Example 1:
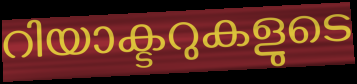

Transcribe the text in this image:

റിയാക്ടറുകളുടെ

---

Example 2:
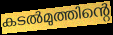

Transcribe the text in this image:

കടൽമുത്തിന്റെ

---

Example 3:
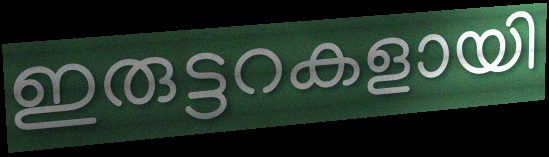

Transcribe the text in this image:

ഇരുട്ടറകളായി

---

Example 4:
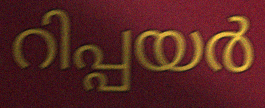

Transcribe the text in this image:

റിപ്പയർ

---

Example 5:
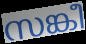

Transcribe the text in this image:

സങ്കീ